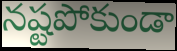
నష్టపోకుండా